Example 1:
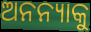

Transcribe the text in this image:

ଅନନ୍ୟାକୁ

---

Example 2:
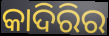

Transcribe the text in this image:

କାଦିରିର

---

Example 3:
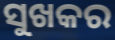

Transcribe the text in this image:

ସୁଖକର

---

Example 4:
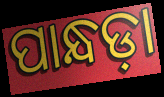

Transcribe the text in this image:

ପାନ୍ଧଡ଼ା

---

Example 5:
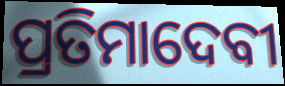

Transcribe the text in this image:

ପ୍ରତିମାଦେବୀ